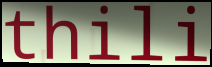
thili